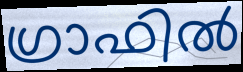
ഗ്രാഫിൽ